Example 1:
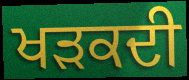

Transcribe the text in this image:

ਖੜਕਦੀ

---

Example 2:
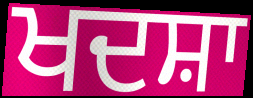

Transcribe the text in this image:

ਖਦਸ਼ਾ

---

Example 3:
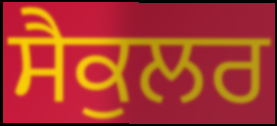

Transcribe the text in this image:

ਸੈਕੁਲਰ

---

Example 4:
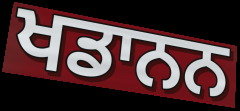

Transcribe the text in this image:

ਖਡਾਨਨ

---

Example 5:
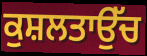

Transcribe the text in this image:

ਕੁਸ਼ਲਤਾਉੱਚ